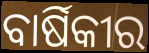
ବାର୍ଷିକୀର